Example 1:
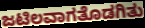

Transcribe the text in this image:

ಜಟಿಲವಾಗತೊಡಗಿತು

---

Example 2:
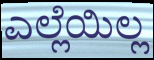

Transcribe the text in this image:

ಎಲ್ಲೆಯಿಲ್ಲ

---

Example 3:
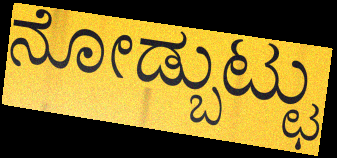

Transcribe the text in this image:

ನೋಡ್ಬುಟ್ಟು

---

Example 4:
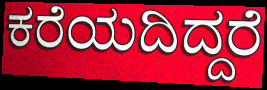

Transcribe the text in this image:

ಕರೆಯದಿದ್ದರೆ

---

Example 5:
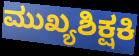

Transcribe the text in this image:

ಮುಖ್ಯಶಿಕ್ಷಕಿ